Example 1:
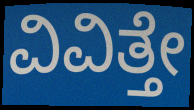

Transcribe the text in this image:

ವಿವಿತ್ತೇ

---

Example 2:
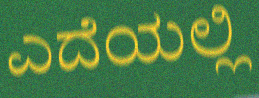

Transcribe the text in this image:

ಎದೆಯಲ್ಲಿ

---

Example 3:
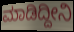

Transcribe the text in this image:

ಮಾಡಿದ್ದೀನಿ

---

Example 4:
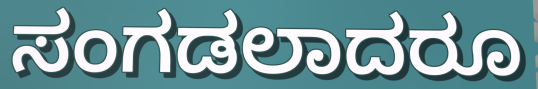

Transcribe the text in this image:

ಸಂಗಡಲಾದರೂ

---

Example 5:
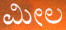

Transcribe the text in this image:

ಮೀಲ